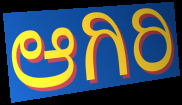
ಆಗಿರಿ